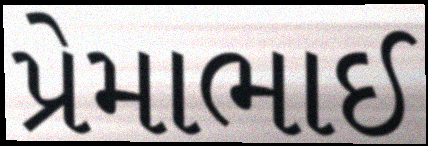
પ્રેમાભાઈ